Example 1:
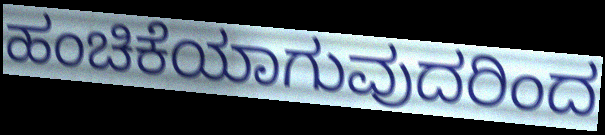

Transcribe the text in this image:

ಹಂಚಿಕೆಯಾಗುವುದರಿಂದ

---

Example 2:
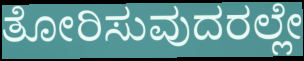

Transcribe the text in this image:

ತೋರಿಸುವುದರಲ್ಲೇ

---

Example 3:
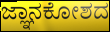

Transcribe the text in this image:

ಜ್ಞಾನಕೋಶದ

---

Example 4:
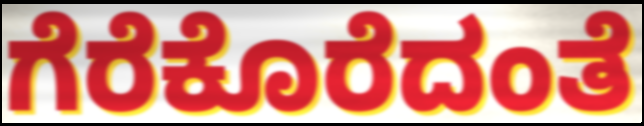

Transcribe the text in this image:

ಗೆರೆಕೊರೆದಂತೆ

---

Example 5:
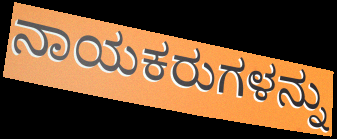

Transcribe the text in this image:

ನಾಯಕರುಗಳನ್ನು